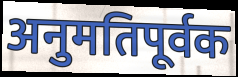
अनुमतिपूर्वक